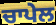
ਚਾਪੇਲ